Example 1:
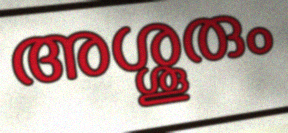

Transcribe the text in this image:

അശ്ശൂരും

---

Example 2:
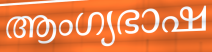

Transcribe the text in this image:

ആംഗ്യഭാഷ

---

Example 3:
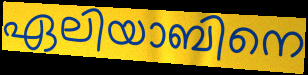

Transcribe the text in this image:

ഏലിയാബിനെ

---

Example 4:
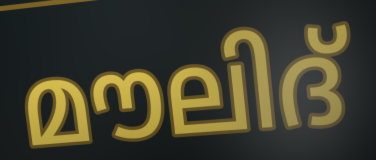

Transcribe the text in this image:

മൗലിദ്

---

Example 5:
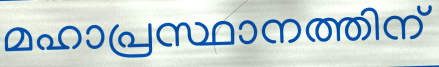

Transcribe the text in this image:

മഹാപ്രസ്ഥാനത്തിന്